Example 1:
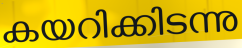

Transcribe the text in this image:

കയറിക്കിടന്നു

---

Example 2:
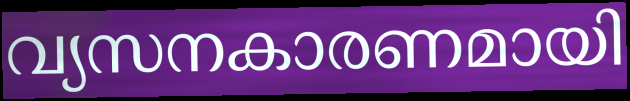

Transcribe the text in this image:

വ്യസനകാരണമായി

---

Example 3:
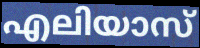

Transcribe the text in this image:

എലിയാസ്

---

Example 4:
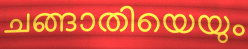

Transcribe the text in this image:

ചങ്ങാതിയെയും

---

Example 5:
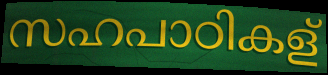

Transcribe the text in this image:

സഹപാഠികള്